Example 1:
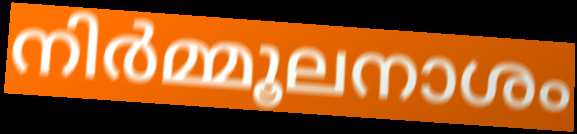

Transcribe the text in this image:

നിർമ്മൂലനാശം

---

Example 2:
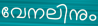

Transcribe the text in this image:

വേനലിനും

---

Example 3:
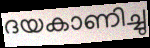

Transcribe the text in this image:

ദയകാണിച്ചു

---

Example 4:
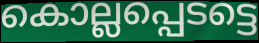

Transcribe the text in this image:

കൊല്ലപ്പെടട്ടെ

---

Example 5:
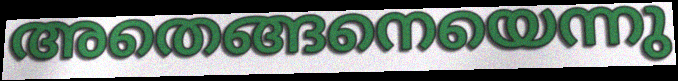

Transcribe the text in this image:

അതെങ്ങനെയെന്നു